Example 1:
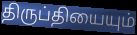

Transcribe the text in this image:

திருப்தியையும்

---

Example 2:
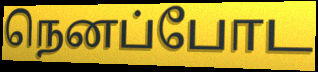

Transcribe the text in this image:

நெனப்போட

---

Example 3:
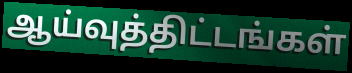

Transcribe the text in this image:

ஆய்வுத்திட்டங்கள்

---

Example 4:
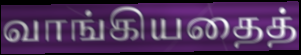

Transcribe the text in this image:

வாங்கியதைத்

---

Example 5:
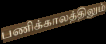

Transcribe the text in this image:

பணிக்காலத்திலும்